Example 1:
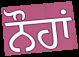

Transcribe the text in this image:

ਨੌਹਾਂ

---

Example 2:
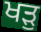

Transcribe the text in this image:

ਖੜੁ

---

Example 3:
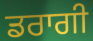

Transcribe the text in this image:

ਡਰਾਗੀ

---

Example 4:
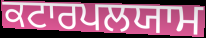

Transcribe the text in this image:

ਕਟਾਰਪਲਯਾਮ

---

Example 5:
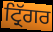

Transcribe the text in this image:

ਟ੍ਰਿੱਗਰ